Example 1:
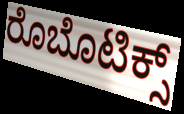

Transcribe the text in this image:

ರೊಬೊಟಿಕ್ಸ್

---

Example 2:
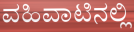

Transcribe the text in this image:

ವಹಿವಾಟಿನಲ್ಲಿ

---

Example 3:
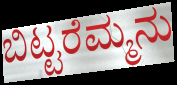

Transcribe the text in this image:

ಬಿಟ್ಟರೆಮ್ಮನು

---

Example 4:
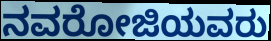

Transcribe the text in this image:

ನವರೋಜಿಯವರು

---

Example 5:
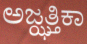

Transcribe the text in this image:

ಅಜ್ಝತ್ತಿಕಾ